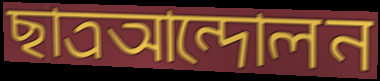
ছাত্রআন্দোলন